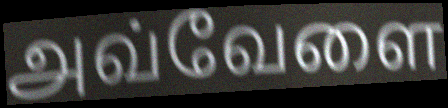
அவ்வேளை